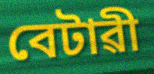
বেটাৱী